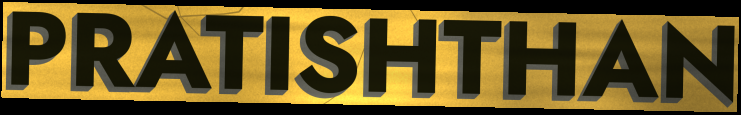
PRATISHTHAN